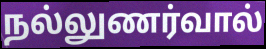
நல்லுணர்வால்